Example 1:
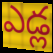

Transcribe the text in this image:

ఎడ్ల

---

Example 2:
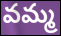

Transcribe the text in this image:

వమ్మ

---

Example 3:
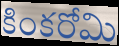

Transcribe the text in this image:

కింకరోమి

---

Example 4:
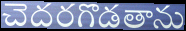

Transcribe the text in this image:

చెదరగొడతాను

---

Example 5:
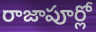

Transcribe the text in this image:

రాజాపూర్లో